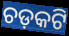
ଚଡ଼କଟି